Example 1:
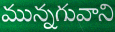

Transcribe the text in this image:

మున్నగువాని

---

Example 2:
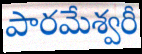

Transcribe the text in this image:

పారమేశ్వరీ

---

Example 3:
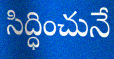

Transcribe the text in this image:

సిద్ధించునే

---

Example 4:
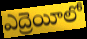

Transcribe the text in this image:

ఎద్రెయీలో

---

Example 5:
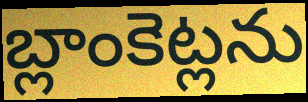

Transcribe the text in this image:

బ్లాంకెట్లను